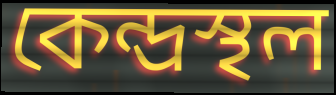
কেন্দ্ৰস্থল